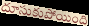
దూసుకుపోయింది